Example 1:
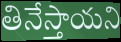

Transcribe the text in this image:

తినేస్తాయని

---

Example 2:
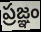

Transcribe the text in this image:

ప్రజ్ఞం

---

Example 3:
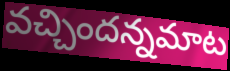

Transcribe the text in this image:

వచ్చిందన్నమాట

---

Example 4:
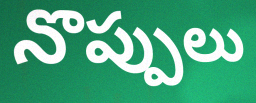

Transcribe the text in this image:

నొప్పులు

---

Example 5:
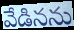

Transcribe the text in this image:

వేడినను